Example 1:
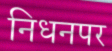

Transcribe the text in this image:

निधनपर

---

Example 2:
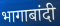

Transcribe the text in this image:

भागाबांदी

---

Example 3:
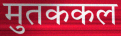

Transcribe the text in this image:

मुतककल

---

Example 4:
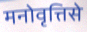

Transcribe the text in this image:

मनोवृत्तिसे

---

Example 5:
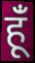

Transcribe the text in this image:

हूँं